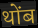
थोंब